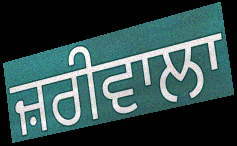
ਜ਼ਰੀਵਾਲਾ